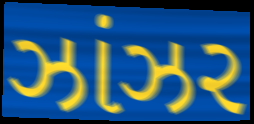
ઝાંઝર